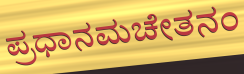
ಪ್ರಧಾನಮಚೇತನಂ